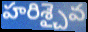
హరిశ్చైవ